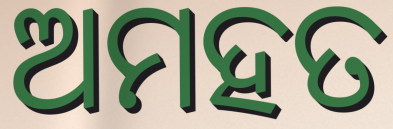
ଅମହତ